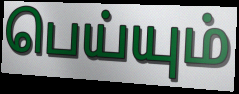
பெய்யும்